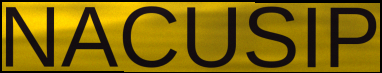
NACUSIP